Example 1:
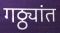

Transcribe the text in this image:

गठ्ठ्यांत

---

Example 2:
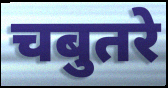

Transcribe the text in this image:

चबुतरे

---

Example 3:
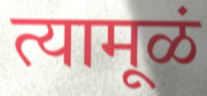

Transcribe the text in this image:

त्यामूळं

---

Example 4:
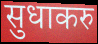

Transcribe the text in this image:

सुधाकरु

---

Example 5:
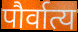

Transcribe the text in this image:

पौर्वात्य